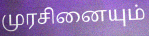
முரசினையும்